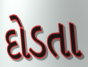
દોડતા